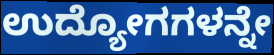
ಉದ್ಯೋಗಗಳನ್ನೇ